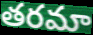
తరమా